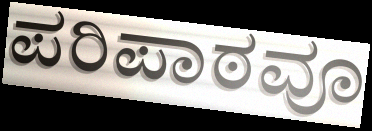
ಪರಿಪಾಠವೂ